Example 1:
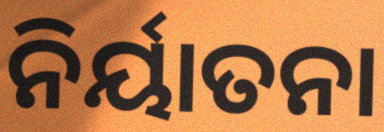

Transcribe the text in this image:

ନିର୍ୟାତନା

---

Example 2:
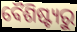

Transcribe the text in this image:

ବୈଶିଷ୍ଟ୍ୟରୁ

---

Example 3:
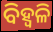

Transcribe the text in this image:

ବିହ୍ୱଳି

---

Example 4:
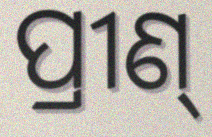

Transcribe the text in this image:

ପ୍ରୀଣ୍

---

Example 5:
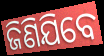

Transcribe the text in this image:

ଜିଣିଯିବେ